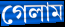
গেলাম